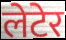
लेटेर